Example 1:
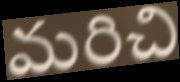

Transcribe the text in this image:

మరిచి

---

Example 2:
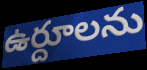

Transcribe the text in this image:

ఉర్దూలను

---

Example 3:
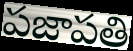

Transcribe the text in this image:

పజాపతి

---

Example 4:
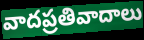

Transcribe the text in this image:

వాదప్రతివాదాలు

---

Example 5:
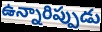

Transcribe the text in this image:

ఉన్నారిప్పుడు